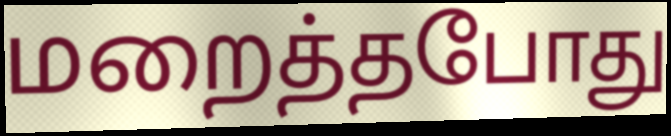
மறைத்தபோது